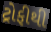
ટ્રોફીથી